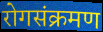
रोगसंक्रमण